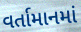
વર્તામાનમાં